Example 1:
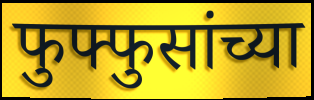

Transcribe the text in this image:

फुफ्फुसांच्या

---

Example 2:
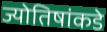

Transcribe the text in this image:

ज्योतिषांकडे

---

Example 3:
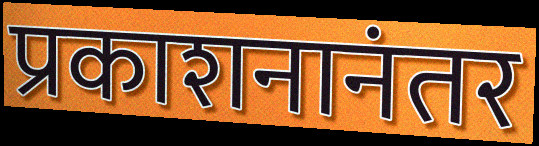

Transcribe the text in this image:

प्रकाशनानंतर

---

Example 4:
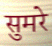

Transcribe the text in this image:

सुमरे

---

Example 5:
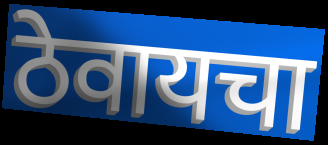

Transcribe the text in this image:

ठेवायचा